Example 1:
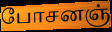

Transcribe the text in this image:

போசனஞ்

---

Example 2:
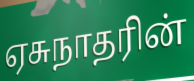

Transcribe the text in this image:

ஏசுநாதரின்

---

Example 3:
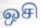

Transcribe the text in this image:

ஒசி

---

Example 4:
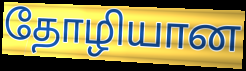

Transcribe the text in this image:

தோழியான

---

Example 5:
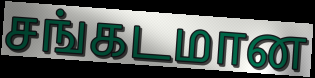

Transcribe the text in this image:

சங்கடமான